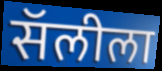
सॅलीला